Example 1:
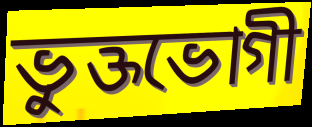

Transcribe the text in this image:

ভুক্তভোগী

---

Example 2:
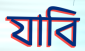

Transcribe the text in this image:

যাবি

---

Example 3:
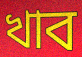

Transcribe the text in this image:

খাব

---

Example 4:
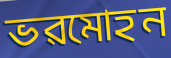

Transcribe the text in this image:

ভৱমোহন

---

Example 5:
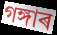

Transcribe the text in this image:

গঙ্গাৰ